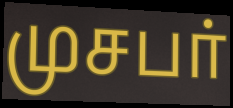
முசபர்